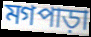
মগপাড়া